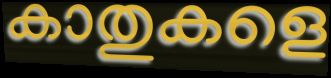
കാതുകളെ